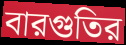
বারগুতির